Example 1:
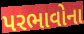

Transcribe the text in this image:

પરભાવોના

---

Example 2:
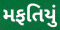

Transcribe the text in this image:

મફતિયું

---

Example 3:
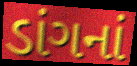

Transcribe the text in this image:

ડાંગનાં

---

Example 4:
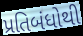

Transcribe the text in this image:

પ્રતિબંધોથી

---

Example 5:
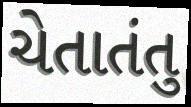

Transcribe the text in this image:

ચેતાતંતુ